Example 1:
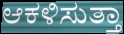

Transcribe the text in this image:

ಆಕಳಿಸುತ್ತಾ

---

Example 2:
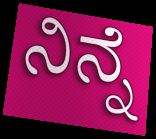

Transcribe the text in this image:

ನಿನ್ನೆ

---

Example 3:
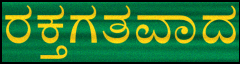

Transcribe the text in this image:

ರಕ್ತಗತವಾದ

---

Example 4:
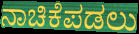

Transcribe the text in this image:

ನಾಚಿಕೆಪಡಲು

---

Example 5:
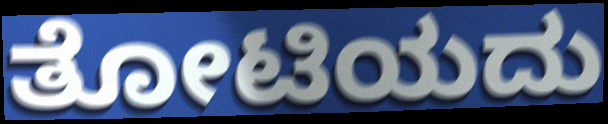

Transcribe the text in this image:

ತೋಟಿಯದು